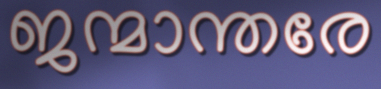
ജന്മാന്തരേ